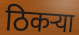
ठिकर्‍या